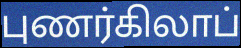
புணர்கிலாப்